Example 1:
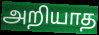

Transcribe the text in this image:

அறியாத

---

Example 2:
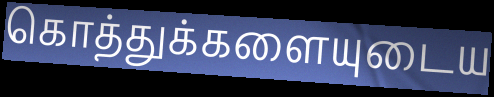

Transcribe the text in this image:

கொத்துக்களையுடைய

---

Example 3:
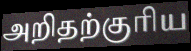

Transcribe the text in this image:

அறிதற்குரிய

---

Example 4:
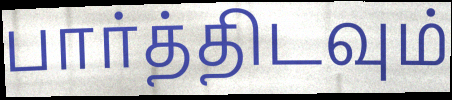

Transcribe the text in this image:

பார்த்திடவும்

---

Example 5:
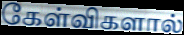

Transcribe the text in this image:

கேள்விகளால்